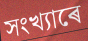
সংখ্যাৰে